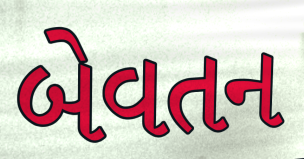
બેવતન